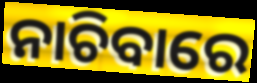
ନାଚିବାରେ